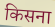
किसना